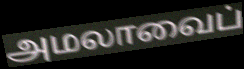
அமலாவைப்